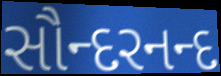
સૌન્દરનન્દ